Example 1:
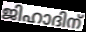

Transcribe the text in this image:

ജിഹാദിന്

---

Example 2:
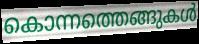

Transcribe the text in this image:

കൊന്നത്തെങ്ങുകൾ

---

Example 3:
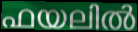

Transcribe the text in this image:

ഫയലിൽ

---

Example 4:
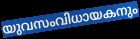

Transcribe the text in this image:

യുവസംവിധായകനും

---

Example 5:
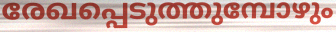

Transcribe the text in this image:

രേഖപ്പെടുത്തുമ്പോഴും